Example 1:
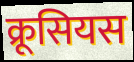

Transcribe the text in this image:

क्रूसियस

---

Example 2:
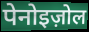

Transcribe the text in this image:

पेनोइज़ोल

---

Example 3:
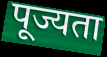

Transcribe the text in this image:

पूज्यता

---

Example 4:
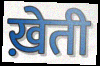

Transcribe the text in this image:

ख़ेती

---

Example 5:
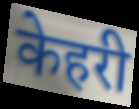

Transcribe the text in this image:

केहरी